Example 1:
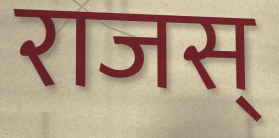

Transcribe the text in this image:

राजस्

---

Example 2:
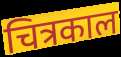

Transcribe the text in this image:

चित्रकाल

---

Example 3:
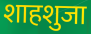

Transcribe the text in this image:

शाहशुजा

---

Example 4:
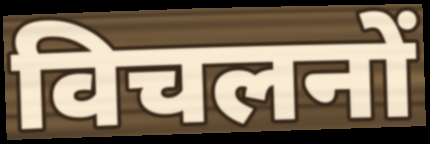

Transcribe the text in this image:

विचलनों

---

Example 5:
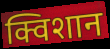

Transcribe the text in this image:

क्विशान